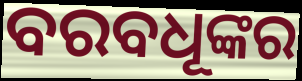
ବରବଧୂଙ୍କର